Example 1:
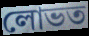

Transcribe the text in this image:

লোভত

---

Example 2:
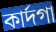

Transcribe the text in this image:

কাৰ্দগা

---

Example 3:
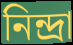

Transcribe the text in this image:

নিন্দ্ৰা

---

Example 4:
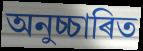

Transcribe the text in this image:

অনুচ্চাৰিত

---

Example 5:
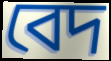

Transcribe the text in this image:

বেদ